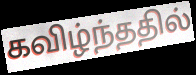
கவிழ்ந்ததில்